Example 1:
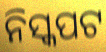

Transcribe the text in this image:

ନିସ୍କପଟ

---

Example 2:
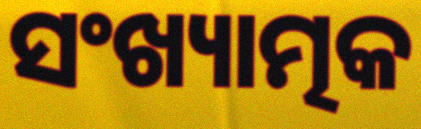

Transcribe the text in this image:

ସଂଖ୍ୟାତ୍ମକ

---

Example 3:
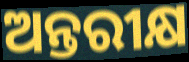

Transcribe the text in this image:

ଅନ୍ତରୀକ୍ଷ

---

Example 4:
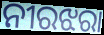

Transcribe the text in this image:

ନୀରଝରା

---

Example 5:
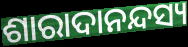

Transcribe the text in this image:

ଶାରାଦାନନ୍ଦସ୍ୟ